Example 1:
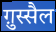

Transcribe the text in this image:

ग़ुस्सैल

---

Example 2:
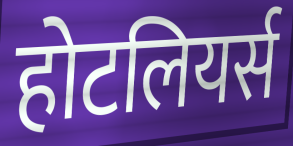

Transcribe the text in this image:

होटलियर्स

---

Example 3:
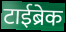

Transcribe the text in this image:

टाईब्रेक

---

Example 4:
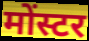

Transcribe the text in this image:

मोंस्टर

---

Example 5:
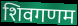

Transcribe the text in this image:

शिवगणम